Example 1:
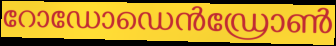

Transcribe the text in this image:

റോഡോഡെൻഡ്രോൺ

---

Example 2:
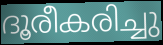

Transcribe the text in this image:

ദൂരീകരിച്ചു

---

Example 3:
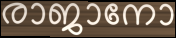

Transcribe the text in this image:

രാജാനോ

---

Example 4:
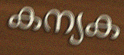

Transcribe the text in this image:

കന്യക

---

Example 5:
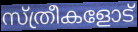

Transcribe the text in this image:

സ്ത്രീകളോട്